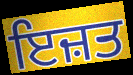
ਇਜ਼ਤ